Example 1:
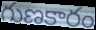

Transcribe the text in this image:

గుణకారం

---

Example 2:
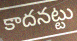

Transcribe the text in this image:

కాదనట్టు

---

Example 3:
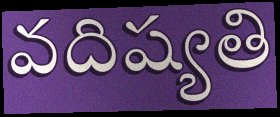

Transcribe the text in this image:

వదిష్యతి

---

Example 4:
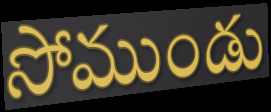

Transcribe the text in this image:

సోముండు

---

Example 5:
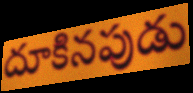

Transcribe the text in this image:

దూకినపుడు